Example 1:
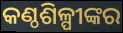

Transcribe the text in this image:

କଣ୍ଠଶିଳ୍ପୀଙ୍କର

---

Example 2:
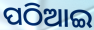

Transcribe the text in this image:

ପଠିଆଇ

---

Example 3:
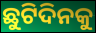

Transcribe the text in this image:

ଛୁଟିଦିନକୁ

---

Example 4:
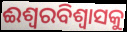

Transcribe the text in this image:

ଈଶ୍ୱରବିଶ୍ଵାସକୁ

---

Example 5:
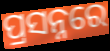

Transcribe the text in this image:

ପ୍ରସନ୍ନରେ